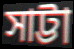
সাট্টা